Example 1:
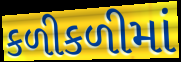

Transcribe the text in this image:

કળીકળીમાં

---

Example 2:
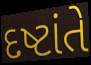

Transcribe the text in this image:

દષ્ટાંતે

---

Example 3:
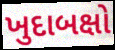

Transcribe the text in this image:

ખુદાબક્ષો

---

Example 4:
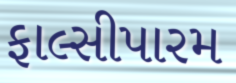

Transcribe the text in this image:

ફાલ્સીપારમ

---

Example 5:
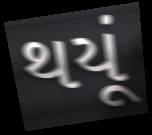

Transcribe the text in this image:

થયૂં